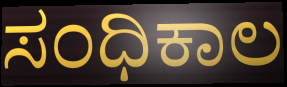
ಸಂಧಿಕಾಲ